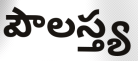
పౌలస్త్య